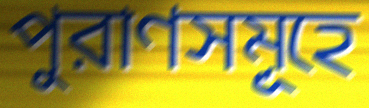
পুরাণসমূহে